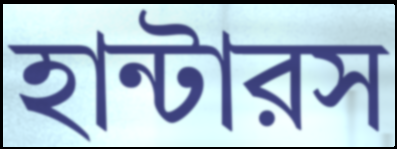
হান্টারস